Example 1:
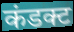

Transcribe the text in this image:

कंडक्ट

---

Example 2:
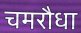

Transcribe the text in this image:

चमरौधा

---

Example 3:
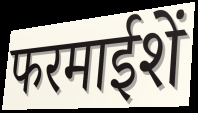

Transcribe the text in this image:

फरमाईशें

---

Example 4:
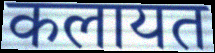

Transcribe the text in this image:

कलायत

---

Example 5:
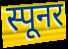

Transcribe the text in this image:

स्पूनर